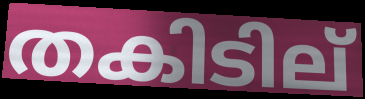
തകിടില്